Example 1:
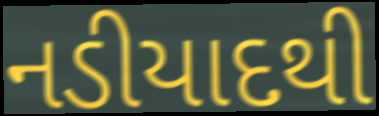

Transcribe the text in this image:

નડીયાદથી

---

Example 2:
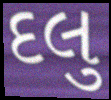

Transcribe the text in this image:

દલુ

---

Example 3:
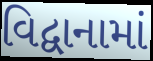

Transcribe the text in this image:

વિદ્વાનામાં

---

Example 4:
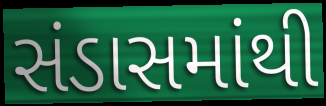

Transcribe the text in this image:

સંડાસમાંથી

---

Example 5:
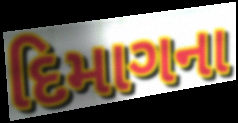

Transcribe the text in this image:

દિમાગના